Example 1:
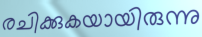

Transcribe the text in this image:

രചിക്കുകയായിരുന്നു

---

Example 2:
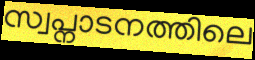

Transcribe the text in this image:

സ്വപ്നാടനത്തിലെ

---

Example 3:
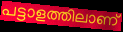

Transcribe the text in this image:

പട്ടാളത്തിലാണ്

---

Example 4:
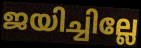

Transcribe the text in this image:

ജയിച്ചില്ലേ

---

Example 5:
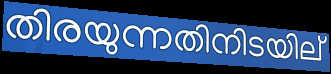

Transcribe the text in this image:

തിരയുന്നതിനിടയില്